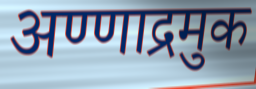
अण्णाद्रमुक